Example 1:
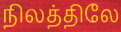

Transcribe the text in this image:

நிலத்திலே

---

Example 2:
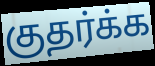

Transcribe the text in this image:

குதர்க்க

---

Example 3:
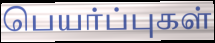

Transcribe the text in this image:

பெயர்ப்புகள்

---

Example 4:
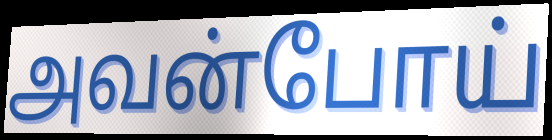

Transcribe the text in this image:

அவன்போய்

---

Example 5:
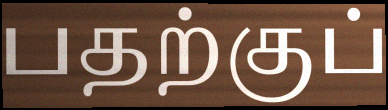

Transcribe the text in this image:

பதற்குப்